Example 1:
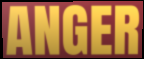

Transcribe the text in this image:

ANGER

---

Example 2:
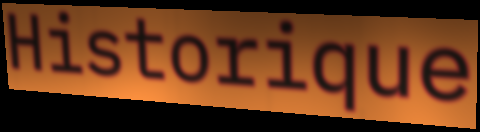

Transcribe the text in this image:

Historique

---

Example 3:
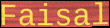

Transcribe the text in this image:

Faisal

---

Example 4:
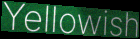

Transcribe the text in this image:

Yellowish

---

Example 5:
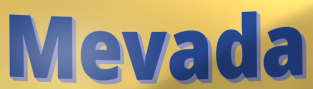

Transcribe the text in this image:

Mevada